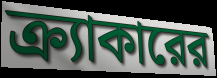
ক্র্যাকারের